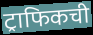
ट्राफिकची